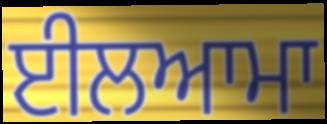
ਈਲਆਮਾ